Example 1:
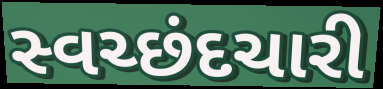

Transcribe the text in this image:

સ્વચ્છંદચારી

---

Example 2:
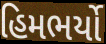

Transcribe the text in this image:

હિમભર્યો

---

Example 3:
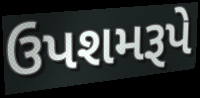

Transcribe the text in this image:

ઉપશમરૂપે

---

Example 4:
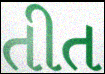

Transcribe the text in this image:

તીત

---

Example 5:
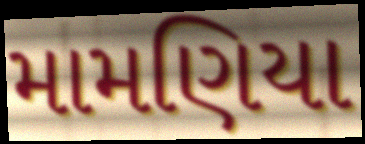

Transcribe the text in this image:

મામણિયા